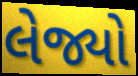
લેજ્યો